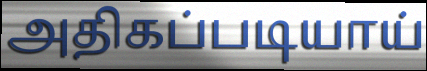
அதிகப்படியாய்